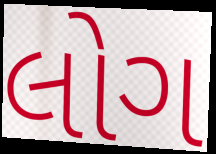
લોગ